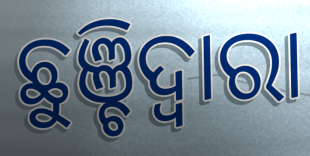
ଛୁଞ୍ଚିଦ୍ଵାରା